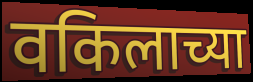
वकिलाच्या